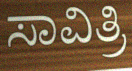
ಸಾವಿತ್ರಿ